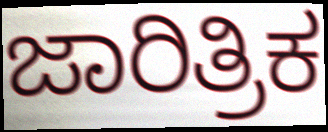
ಜಾರಿತ್ರಿಕ